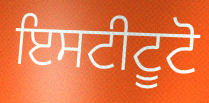
ਇਸਟੀਟੂਟੋ